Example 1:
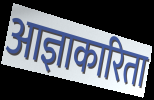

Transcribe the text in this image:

आज्ञाकारिता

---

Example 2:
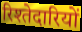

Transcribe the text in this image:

रिश्तेदारियों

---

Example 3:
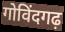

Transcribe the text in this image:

गोविंदगढ़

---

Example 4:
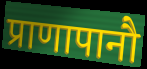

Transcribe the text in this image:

प्राणापानौ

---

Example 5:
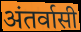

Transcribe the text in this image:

अंतर्वासी